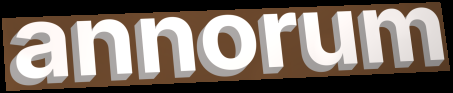
annorum